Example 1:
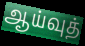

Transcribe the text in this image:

ஆய்வுத்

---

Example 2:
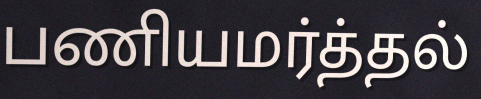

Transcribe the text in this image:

பணியமர்த்தல்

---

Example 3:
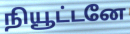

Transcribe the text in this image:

நியூட்டனே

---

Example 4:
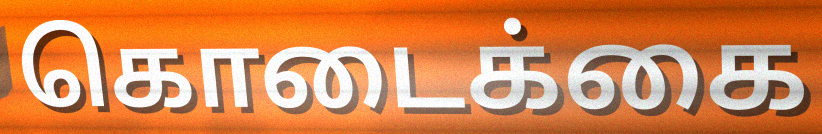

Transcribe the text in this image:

கொடைக்கை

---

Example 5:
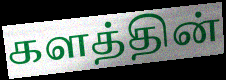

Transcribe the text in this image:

களத்தின்